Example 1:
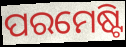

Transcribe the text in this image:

ପରମେଷ୍ଟି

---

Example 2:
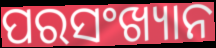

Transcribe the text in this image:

ପରସଂଖ୍ୟାନ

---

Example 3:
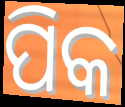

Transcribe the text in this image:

ପିକ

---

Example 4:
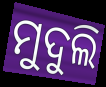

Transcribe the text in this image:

ମୁଦୁଲି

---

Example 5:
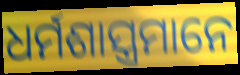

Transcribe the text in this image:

ଧର୍ମଶାସ୍ତ୍ରମାନେ